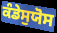
ਕੰਡੇਸੁਯੋਸ